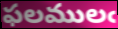
ఫలములఁ